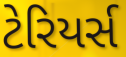
ટેરિયર્સ